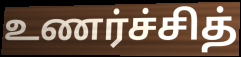
உணர்ச்சித்